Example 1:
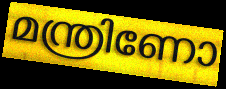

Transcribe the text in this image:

മന്ത്രിണോ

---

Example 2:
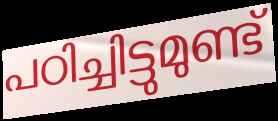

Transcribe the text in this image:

പഠിച്ചിട്ടുമുണ്ട്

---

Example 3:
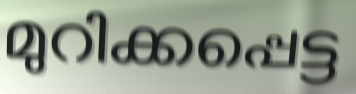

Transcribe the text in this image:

മുറിക്കപ്പെട്ട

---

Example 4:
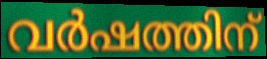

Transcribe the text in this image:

വർഷത്തിന്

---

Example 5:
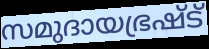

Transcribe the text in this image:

സമുദായഭ്രഷ്ട്